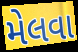
મેલવા